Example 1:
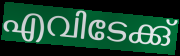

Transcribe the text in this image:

എവിടേക്കു്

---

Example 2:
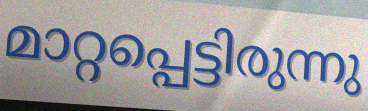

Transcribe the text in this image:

മാറ്റപ്പെട്ടിരുന്നു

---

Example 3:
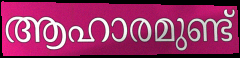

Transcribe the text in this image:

ആഹാരമുണ്ട്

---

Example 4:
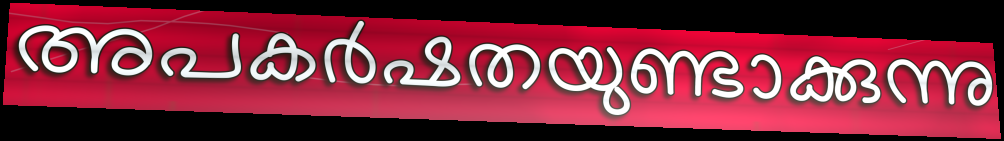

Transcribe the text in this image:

അപകർഷതയുണ്ടാക്കുന്നു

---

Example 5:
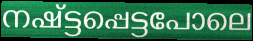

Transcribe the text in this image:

നഷ്ട്ടപ്പെട്ടപോലെ